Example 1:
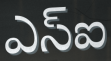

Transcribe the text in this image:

ఎస్ఐ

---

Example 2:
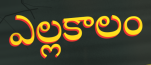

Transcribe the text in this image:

ఎల్లకాలం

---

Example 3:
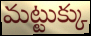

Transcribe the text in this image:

మట్టుక్కు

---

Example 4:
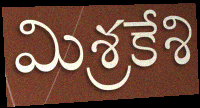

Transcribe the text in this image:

మిశ్రకేశి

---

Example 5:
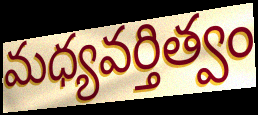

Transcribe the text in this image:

మధ్యవర్తిత్వం